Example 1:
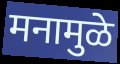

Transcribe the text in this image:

मनामुळे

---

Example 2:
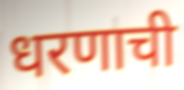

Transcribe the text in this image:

धरणाची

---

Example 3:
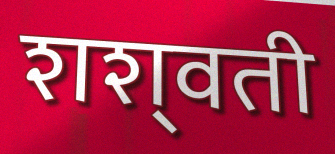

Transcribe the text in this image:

शश्वती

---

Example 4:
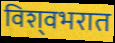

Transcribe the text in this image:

विश्वभरात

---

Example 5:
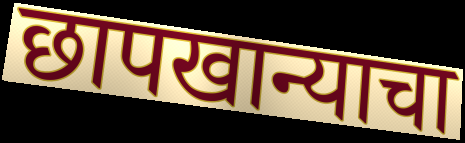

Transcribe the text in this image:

छापखान्याचा